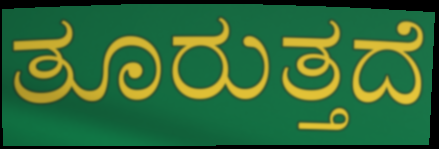
ತೂರುತ್ತದೆ